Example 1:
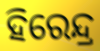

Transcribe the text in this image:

ହିରେନ୍ଦ୍ର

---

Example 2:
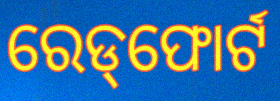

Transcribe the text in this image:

ରେଡ୍‌ଫୋର୍ଟ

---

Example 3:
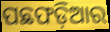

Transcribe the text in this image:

ପଛଫଡ଼ିଆର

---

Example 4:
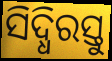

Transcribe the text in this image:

ସିଦ୍ଧିରସ୍ତୁ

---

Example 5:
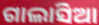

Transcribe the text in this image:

ଗାଲାସିଆ